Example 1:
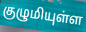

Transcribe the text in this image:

குழுமியுள்ள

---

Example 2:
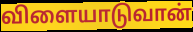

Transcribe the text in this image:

விளையாடுவான்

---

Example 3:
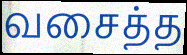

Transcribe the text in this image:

வசைத்த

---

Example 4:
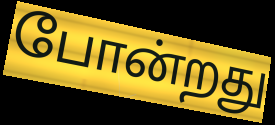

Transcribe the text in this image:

போன்றது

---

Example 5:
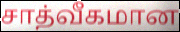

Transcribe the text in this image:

சாத்வீகமான